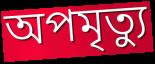
অপমৃত্যু